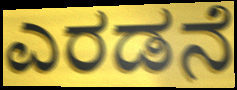
ಎರಡನೆ